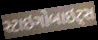
સ્ટાઇગોબાઇટ્સ